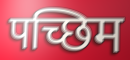
पच्छिम